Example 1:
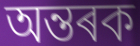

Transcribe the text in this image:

অন্তৰক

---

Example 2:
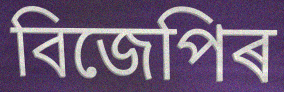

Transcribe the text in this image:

বিজেপিৰ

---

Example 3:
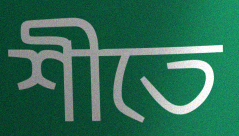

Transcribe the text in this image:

শীতে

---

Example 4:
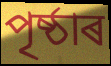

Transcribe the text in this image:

পৃষ্ঠাৰ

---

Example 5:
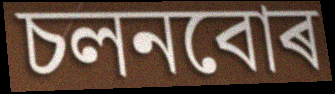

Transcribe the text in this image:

চলনবোৰ